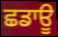
ਛਡਾਊ